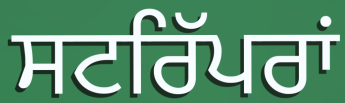
ਸਟਰਿੱਪਰਾਂ